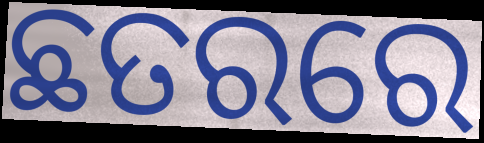
ଛତରରେ